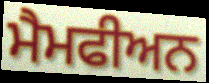
ਮੈਮਫੀਅਨ